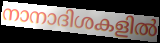
നാനാദിശകളിൽ